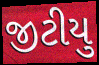
જીટીયુ